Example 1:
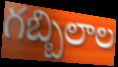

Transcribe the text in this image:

గబ్బిలాల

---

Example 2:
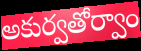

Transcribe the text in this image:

అకుర్వతోర్వాం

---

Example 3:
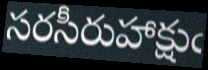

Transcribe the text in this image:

సరసీరుహాక్షుఁ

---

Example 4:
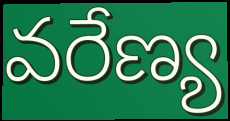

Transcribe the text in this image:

వరేణ్య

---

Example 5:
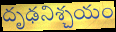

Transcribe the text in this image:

దృఢనిశ్చయం